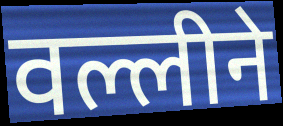
वल्लीने